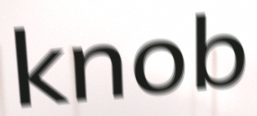
knob